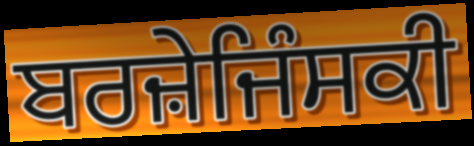
ਬਰਜ਼ੇਜਿੰਸਕੀ